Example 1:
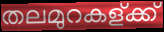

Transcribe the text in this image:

തലമുറകള്ക്ക്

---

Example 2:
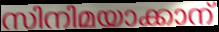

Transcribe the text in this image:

സിനിമയാക്കാന്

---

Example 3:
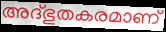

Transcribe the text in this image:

അദ്ഭുതകരമാണ്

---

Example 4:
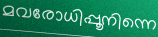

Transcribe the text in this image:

മവരോധിപ്പൂനിന്നെ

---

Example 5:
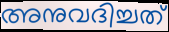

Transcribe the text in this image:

അനുവദിച്ചത്